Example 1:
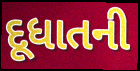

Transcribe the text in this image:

દૂધાતની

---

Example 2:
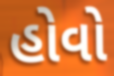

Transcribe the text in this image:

હોવો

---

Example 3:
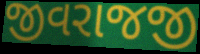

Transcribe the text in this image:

જીવરાજજી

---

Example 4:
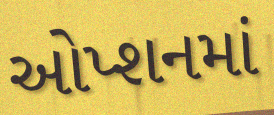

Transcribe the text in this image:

ઓપ્શનમાં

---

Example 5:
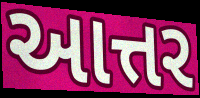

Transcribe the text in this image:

આત્તર